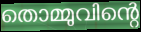
തൊമ്മുവിന്റെ